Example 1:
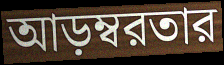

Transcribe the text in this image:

আড়ম্বরতার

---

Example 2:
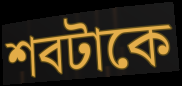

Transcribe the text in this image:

শবটাকে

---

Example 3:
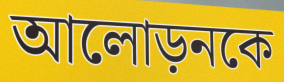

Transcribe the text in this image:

আলোড়নকে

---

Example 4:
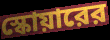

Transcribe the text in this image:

স্কোয়ারের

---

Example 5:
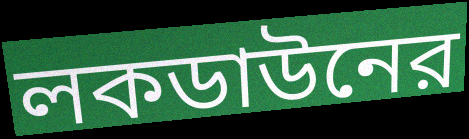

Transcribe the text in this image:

লকডাউনের